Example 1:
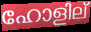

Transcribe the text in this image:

ഹോളില്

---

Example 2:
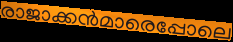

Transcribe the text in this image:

രാജാക്കൻമാരെപ്പോലെ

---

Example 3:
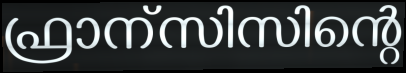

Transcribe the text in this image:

ഫ്രാന്സിസിന്റെ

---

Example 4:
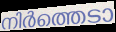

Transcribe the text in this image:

നിർത്തെടാ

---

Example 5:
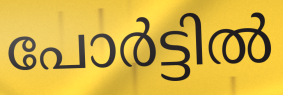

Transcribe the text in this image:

പോർട്ടിൽ